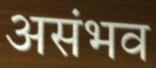
असंभव